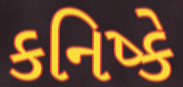
કનિષ્કે